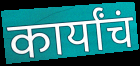
कार्यांचं